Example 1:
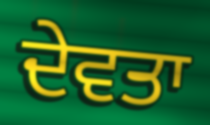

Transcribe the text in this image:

ਦੇਵਤਾ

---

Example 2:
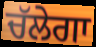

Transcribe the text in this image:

ਚੱਲੇਗਾ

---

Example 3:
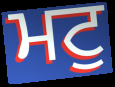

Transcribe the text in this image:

ਮਟੁ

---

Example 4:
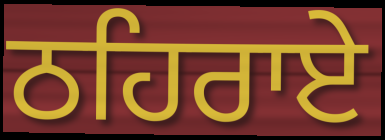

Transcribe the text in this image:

ਠਹਿਰਾਏ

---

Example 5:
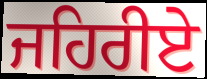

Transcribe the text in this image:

ਜਹਿਰੀਏ